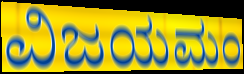
ವಿಜಯಮಂ